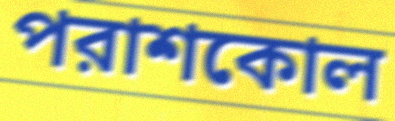
পরাশকোল